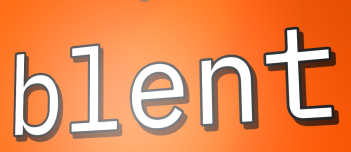
blent